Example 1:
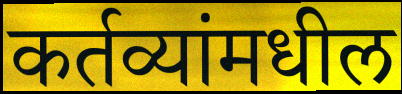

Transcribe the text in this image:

कर्तव्यांमधील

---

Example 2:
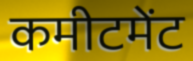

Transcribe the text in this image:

कमीटमेंट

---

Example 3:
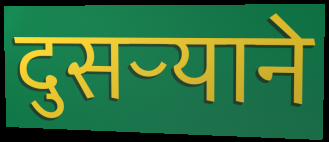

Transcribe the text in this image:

दुसऱ्याने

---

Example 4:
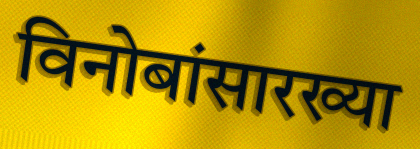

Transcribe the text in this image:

विनोबांसारख्या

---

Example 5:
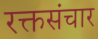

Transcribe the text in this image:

रक्तसंचार